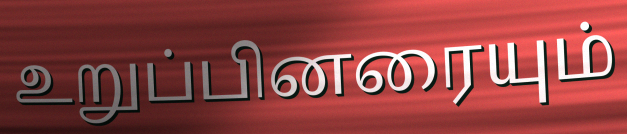
உறுப்பினரையும்